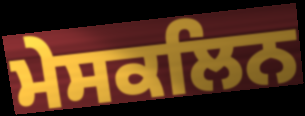
ਮੇਸਕਲਿਨ